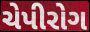
ચેપીરોગ